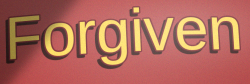
Forgiven